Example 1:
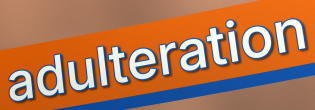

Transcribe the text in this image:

adulteration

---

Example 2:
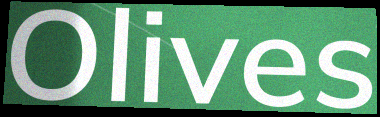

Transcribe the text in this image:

Olives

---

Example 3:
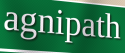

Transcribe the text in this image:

agnipath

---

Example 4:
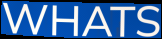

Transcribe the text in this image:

WHATS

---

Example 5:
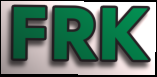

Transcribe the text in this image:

FRK